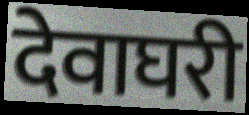
देवाघरी